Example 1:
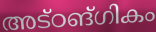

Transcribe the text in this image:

അട്ഠങ്ഗികം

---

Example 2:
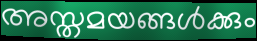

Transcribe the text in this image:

അസ്തമയങ്ങൾക്കും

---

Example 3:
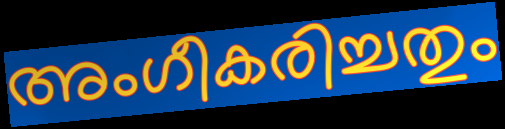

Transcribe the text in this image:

അംഗീകരിച്ചതും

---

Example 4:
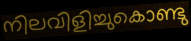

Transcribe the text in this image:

നിലവിളിച്ചുകൊണ്ടു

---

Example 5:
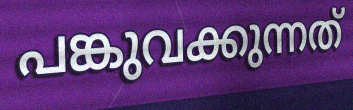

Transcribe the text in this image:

പങ്കുവക്കുന്നത്